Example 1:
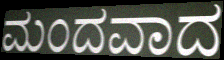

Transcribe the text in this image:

ಮಂದವಾದ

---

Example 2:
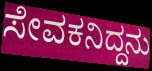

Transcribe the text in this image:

ಸೇವಕನಿದ್ದನು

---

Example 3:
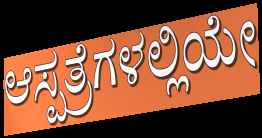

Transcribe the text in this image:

ಆಸ್ಪತ್ರೆಗಳಲ್ಲಿಯೇ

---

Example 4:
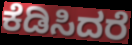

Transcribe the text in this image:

ಕೆಡಿಸಿದರೆ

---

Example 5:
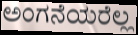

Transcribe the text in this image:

ಅಂಗನೆಯರೆಲ್ಲ